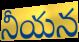
నీయన